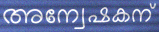
അന്വേഷകന്